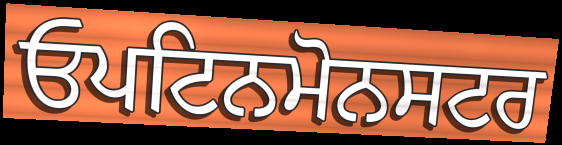
ਓਪਟਿਨਮੋਨਸਟਰ